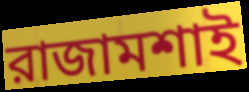
রাজামশাই